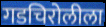
गडचिरोलीला